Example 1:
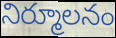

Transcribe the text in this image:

నిర్మూలనం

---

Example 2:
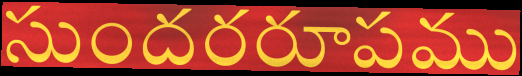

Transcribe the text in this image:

సుందరరూపము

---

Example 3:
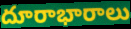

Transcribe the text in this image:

దూరాభారాలు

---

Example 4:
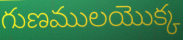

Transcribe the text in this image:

గుణములయొక్క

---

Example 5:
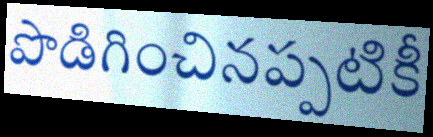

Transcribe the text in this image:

పొడిగించినప్పటికీ